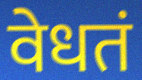
वेधतं